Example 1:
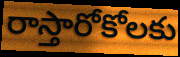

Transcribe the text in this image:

రాస్తారోకోలకు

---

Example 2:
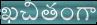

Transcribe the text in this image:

ఖచితంగా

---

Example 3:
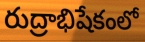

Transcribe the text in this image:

రుద్రాభిషేకంలో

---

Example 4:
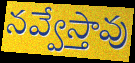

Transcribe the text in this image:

నవ్వేస్తావు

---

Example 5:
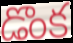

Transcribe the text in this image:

డొంక